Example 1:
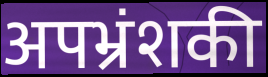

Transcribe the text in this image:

अपभ्रंशकी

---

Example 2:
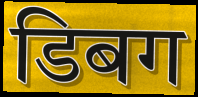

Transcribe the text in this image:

डिबग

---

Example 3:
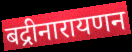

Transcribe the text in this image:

बद्रीनारायणन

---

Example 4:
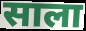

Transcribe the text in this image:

साला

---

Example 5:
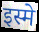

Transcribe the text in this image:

इस्मे